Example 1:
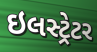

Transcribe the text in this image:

ઇલસ્ટ્રેટર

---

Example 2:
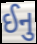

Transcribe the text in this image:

ઈનુ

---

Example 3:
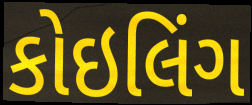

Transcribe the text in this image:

કોઇલિંગ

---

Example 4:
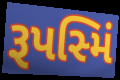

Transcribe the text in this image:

રૂપસ્મિં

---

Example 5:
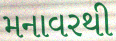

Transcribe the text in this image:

મનાવરથી